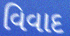
વિવાદ